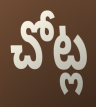
చోట్ల